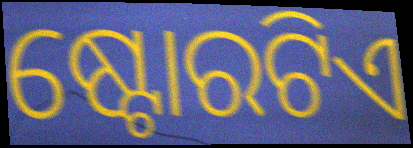
ଷ୍ଟୋରଟିଏ